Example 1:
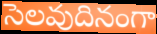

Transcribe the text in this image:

సెలవుదినంగా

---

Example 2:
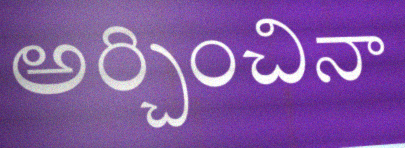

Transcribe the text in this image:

అర్చించినా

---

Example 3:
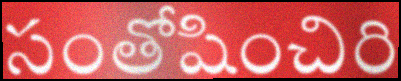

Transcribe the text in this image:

సంతోషించిరి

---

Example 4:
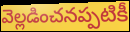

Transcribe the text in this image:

వెల్లడించనప్పటికీ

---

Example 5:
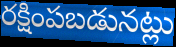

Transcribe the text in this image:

రక్షింపబడునట్లు